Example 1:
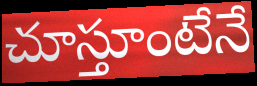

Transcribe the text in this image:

చూస్తూంటేనే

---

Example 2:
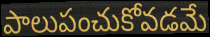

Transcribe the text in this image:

పాలుపంచుకోవడమే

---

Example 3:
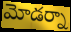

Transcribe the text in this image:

మోడర్నా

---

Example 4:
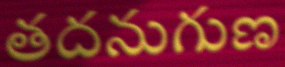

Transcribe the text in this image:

తదనుగుణ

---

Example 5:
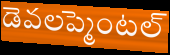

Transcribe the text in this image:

డెవలప్మెంటల్